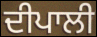
ਦੀਪਾਲੀ